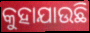
କୁହାଯାଉଛି